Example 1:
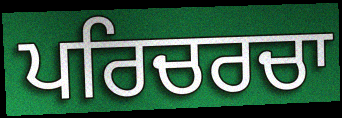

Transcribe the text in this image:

ਪਰਿਚਰਚਾ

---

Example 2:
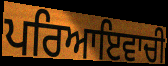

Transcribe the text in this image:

ਪਰਿਆਇਵਾਚੀ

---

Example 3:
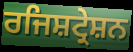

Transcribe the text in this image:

ਰਜਿਸ਼ਟ੍ਰੇਸ਼ਨ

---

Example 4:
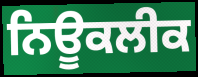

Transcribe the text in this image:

ਨਿਊਕਲੀਕ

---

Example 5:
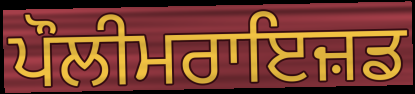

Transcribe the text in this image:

ਪੌਲੀਮਰਾਇਜ਼ਡ